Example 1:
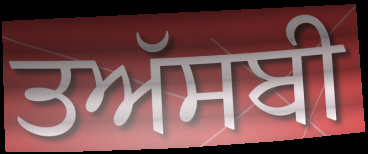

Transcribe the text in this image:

ਤਅੱਸਬੀ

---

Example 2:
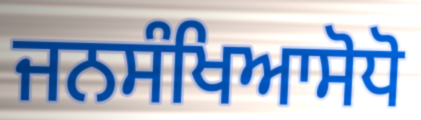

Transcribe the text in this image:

ਜਨਸੰਖਿਆਸੋਧੋ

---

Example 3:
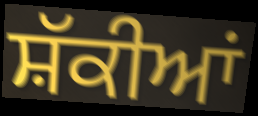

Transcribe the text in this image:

ਸ਼ੱਕੀਆਂ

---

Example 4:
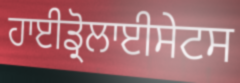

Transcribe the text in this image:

ਹਾਈਡ੍ਰੋਲਾਈਸੇਟਸ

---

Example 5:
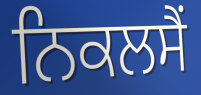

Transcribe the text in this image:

ਨਿਕਲਸੈਂ